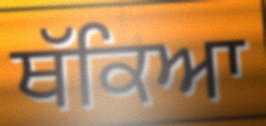
ਥੱਕਿਆ